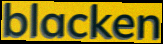
blacken